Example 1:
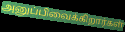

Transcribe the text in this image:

அனுப்பிவைக்கிறார்கள்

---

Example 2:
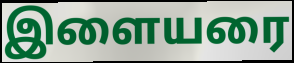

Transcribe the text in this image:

இளையரை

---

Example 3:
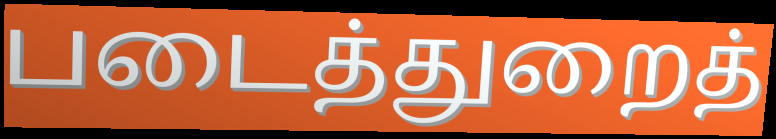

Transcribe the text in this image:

படைத்துறைத்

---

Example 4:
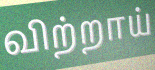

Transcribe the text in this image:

விற்றாய்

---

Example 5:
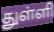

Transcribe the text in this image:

துள்ளி